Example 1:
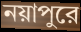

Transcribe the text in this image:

নয়াপুরে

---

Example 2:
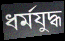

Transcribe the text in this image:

ধর্মযুদ্ধ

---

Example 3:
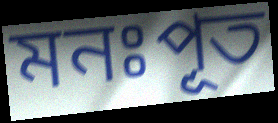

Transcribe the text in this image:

মনঃপূত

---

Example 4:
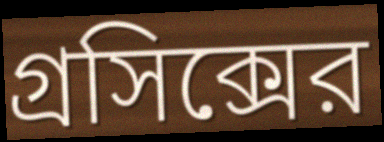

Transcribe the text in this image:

গ্রসিক্সের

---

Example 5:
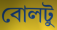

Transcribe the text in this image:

বোলটু